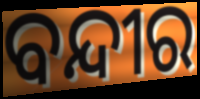
ବନ୍ଦୀର